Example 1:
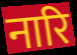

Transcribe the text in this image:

नारि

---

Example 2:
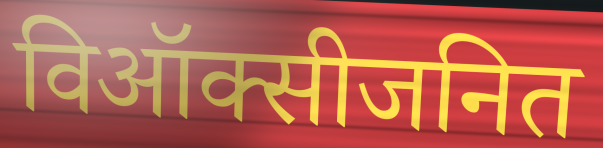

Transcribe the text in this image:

विऑक्सीजनित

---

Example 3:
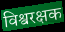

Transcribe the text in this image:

विश्वरक्षक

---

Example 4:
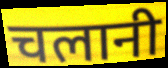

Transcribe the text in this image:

चलानी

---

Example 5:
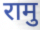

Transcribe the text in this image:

रामु